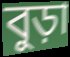
বুড়া